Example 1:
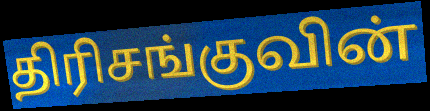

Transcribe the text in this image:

திரிசங்குவின்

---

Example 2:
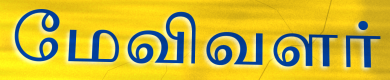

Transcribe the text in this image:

மேவிவளர்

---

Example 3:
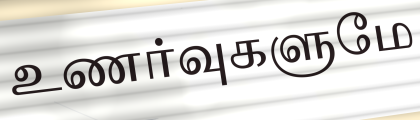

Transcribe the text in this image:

உணர்வுகளுமே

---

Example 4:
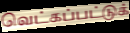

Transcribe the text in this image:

வெட்கப்பட்டுக்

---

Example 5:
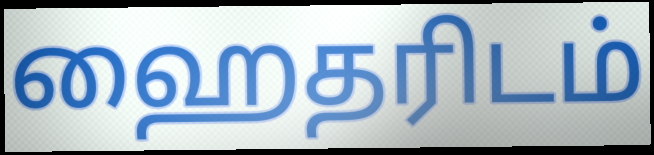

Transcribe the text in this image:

ஹைதரிடம்